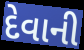
દેવાની